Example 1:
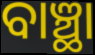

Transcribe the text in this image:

ବାଞ୍ଛା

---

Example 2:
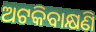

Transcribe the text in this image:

ଅଟକିବାକ୍ଷଣି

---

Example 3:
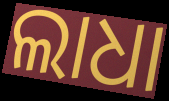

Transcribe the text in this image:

ଲାଧା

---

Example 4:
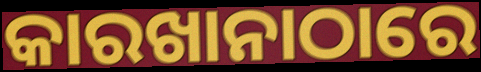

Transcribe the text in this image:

କାରଖାନାଠାରେ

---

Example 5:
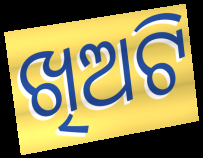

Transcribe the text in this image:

ଖିଅଟି